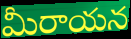
మీరాయన